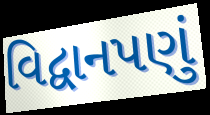
વિદ્વાનપણું